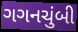
ગગનચુંબી